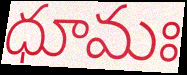
ధూమః